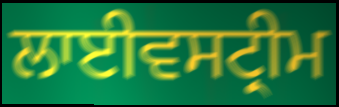
ਲਾਈਵਸਟ੍ਰੀਮ